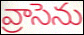
వ్రాసెను